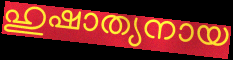
ഹുഷാത്യനായ